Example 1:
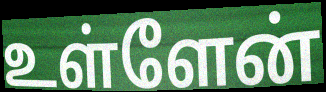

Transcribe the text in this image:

உள்ளேன்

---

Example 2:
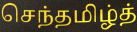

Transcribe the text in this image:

செந்தமிழ்த்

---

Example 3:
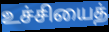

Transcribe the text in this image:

உச்சியைத்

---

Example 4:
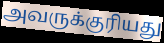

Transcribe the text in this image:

அவருக்குரியது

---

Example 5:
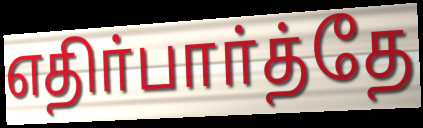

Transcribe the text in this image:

எதிர்பார்த்தே